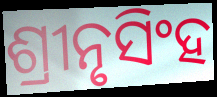
ଶ୍ରୀନୃସିଂହ